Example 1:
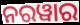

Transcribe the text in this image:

ନରୱାର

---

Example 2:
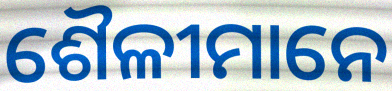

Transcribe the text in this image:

ଶୈଳୀମାନେ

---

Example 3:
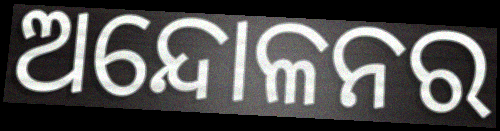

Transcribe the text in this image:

ଅନ୍ଦୋଳନର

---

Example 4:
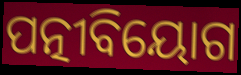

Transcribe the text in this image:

ପତ୍ନୀବିୟୋଗ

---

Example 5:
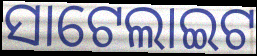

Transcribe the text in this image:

ସାଟେଲାଇଟ